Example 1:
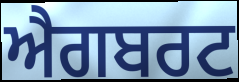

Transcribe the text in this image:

ਐਗਬਰਟ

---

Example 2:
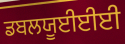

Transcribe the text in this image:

ਡਬਲਯੂਈਈਈ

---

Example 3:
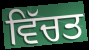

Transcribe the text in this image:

ਵਿੱਚਤ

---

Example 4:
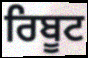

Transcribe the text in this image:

ਰਿਬੂਟ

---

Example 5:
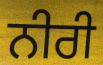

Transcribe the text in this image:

ਨੀਰੀ